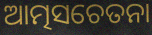
ଆତ୍ମସଚେତନା